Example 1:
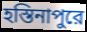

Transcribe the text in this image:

হস্তিনাপুরে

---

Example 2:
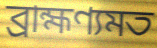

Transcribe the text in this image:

ব্রাহ্মণ্যমত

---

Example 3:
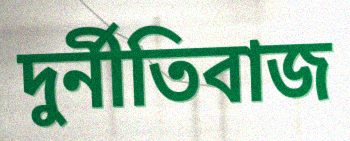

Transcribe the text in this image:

দুর্নীতিবাজ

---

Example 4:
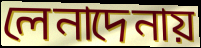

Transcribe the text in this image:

লেনাদেনায়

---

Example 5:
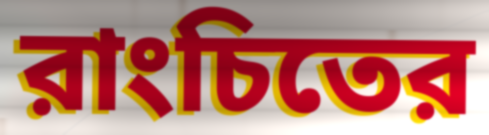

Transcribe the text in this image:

রাংচিতের